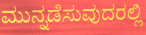
ಮುನ್ನಡೆಸುವುದರಲ್ಲಿ